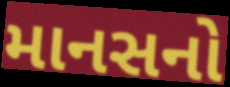
માનસનો